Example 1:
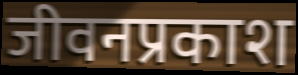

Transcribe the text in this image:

जीवनप्रकाश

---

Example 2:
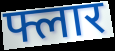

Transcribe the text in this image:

फ्लार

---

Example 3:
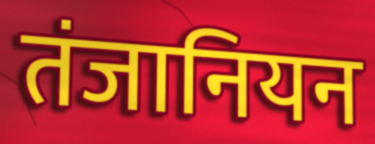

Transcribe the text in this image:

तंजानियन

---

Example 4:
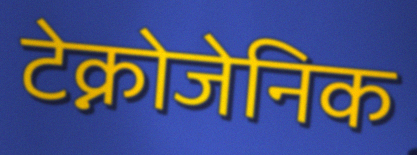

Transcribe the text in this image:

टेक्नोजेनिक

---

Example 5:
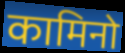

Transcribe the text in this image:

कामिनो